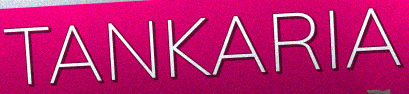
TANKARIA